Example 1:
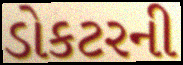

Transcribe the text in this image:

ડોકટરની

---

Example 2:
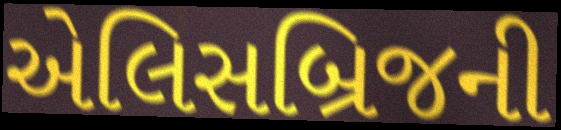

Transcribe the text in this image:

એલિસબ્રિજની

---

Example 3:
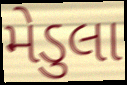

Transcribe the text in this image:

મેડુલા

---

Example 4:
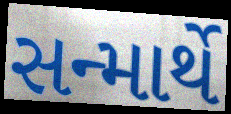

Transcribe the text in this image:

સન્માર્થે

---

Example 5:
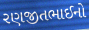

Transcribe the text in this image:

રણજીતભાઈનો